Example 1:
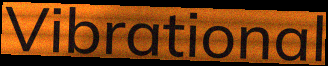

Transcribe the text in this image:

Vibrational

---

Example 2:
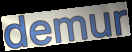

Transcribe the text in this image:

demur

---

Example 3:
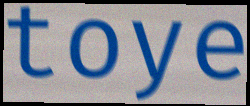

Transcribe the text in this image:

toye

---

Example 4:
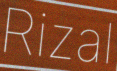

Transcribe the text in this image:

Rizal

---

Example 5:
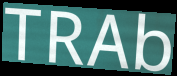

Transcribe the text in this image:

TRAb